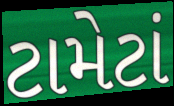
ટામેટાં